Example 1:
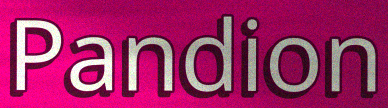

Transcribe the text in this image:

Pandion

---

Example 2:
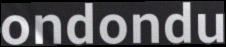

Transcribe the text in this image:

ondondu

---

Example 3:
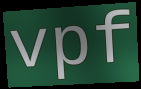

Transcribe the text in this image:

vpf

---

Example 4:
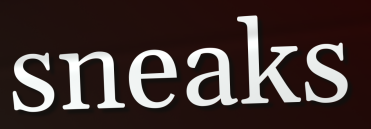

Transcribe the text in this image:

sneaks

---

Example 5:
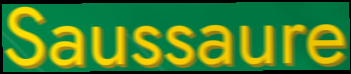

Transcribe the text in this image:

Saussaure